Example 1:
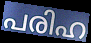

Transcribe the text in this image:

പരിഹ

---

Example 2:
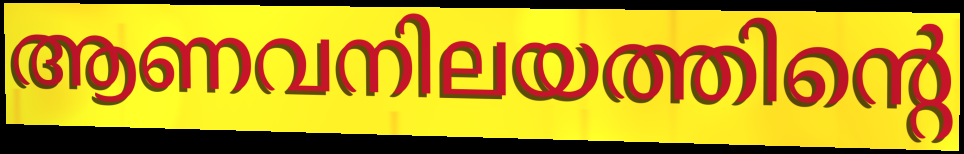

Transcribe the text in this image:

ആണവനിലയത്തിന്റെ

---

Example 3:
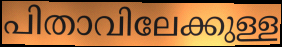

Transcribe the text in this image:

പിതാവിലേക്കുള്ള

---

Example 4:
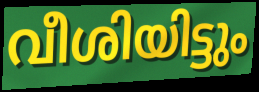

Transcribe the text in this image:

വീശിയിട്ടും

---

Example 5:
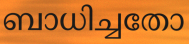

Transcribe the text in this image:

ബാധിച്ചതോ